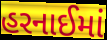
હરનાઈમાં